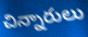
చిన్నారులు